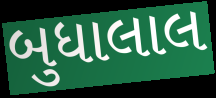
બુધાલાલ